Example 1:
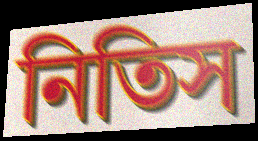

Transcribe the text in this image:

নিতিস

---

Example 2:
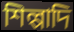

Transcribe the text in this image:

শিল্পাদি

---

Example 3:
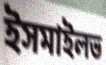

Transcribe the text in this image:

ইসমাইলভ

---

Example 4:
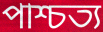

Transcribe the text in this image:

পাশ্চত্য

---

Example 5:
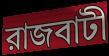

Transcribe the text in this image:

রাজবাটী